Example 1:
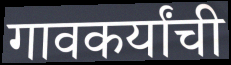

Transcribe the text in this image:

गावकर्यांची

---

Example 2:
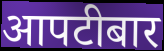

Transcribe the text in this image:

आपटीबार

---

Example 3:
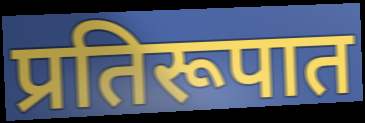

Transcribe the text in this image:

प्रतिरूपात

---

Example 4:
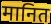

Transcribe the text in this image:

मानित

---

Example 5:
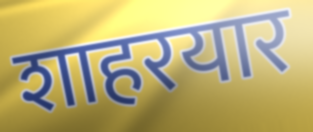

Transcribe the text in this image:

शाहरयार